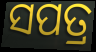
ସପତ୍ର